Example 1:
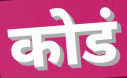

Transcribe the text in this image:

कोडं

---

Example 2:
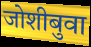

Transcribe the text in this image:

जोशीबुवा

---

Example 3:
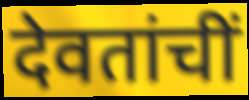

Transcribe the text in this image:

देवतांचीं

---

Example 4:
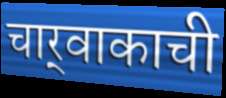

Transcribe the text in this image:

चार्वाकाची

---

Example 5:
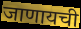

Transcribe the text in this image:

जाणायची